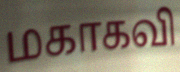
மகாகவி